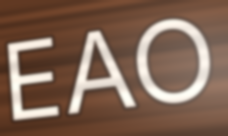
EAO